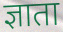
ज्ञाता